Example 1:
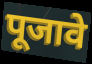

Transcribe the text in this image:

पूजावे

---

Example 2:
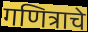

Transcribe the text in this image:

गणित्राचे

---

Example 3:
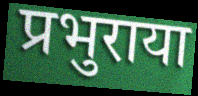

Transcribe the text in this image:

प्रभुराया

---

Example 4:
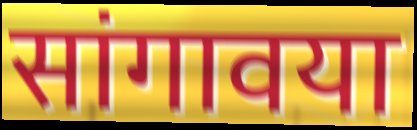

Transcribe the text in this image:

सांगावया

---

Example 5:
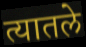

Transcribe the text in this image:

त्‍यातले